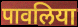
पावलिया